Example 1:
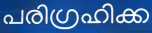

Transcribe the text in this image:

പരിഗ്രഹിക്ക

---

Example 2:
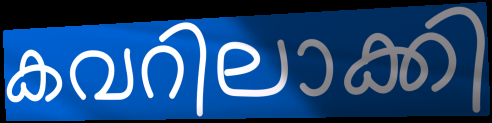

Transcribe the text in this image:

കവറിലാക്കി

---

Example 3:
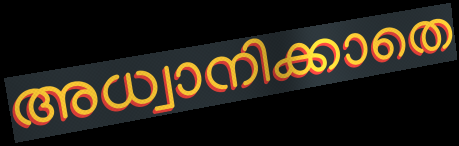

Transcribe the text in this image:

അധ്വാനിക്കാതെ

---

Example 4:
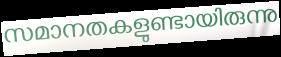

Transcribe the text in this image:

സമാനതകളുണ്ടായിരുന്നു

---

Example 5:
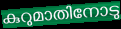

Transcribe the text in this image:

കുറുമാതിനോടു